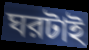
ঘরটাই